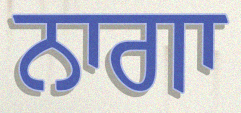
ਨਾਗਾ